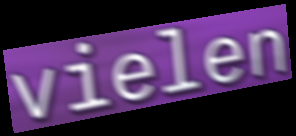
vielen